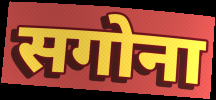
सगोना